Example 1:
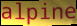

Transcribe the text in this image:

alpine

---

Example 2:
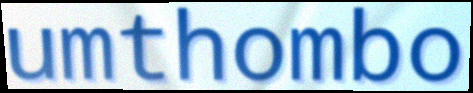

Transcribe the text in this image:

umthombo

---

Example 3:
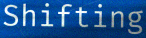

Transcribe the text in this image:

Shifting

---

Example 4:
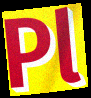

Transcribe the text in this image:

Pl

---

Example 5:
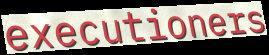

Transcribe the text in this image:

executioners